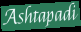
Ashtapadi